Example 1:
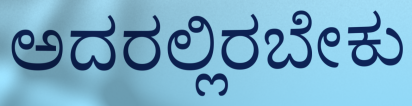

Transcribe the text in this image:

ಅದರಲ್ಲಿರಬೇಕು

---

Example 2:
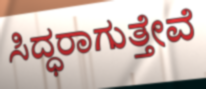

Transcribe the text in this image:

ಸಿದ್ಧರಾಗುತ್ತೇವೆ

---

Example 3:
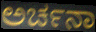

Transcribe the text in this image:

ಅರ್ಚನಾ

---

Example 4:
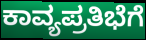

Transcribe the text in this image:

ಕಾವ್ಯಪ್ರತಿಭೆಗೆ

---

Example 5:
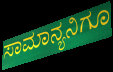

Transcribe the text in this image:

ಸಾಮಾನ್ಯನಿಗೂ